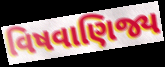
વિષવાણિજ્ય